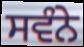
ਸਵੰਨੇ